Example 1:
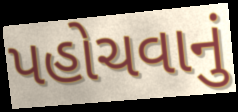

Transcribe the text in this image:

પહોચવાનું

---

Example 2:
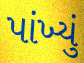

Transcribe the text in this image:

પાંખ્યું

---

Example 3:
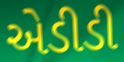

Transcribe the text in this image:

એડીડી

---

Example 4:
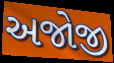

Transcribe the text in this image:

અજોજી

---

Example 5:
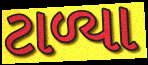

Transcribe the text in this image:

ટાળ્યા